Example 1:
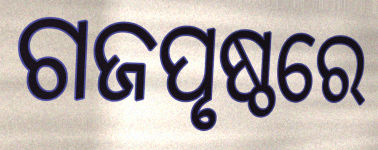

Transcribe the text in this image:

ଗଜପୃଷ୍ଠରେ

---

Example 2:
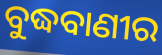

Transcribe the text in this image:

ବୁଦ୍ଧବାଣୀର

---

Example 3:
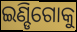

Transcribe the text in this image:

ଇଣ୍ଡିଗୋକୁ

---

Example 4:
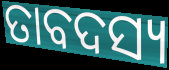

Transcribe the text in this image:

ତାବଦସ୍ୟ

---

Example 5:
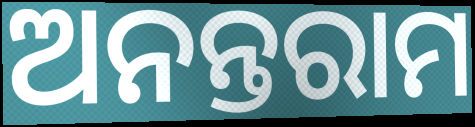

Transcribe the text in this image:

ଅନନ୍ତରାମ